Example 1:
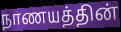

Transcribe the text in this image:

நாணயத்தின்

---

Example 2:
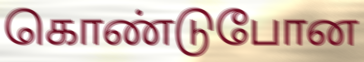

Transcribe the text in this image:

கொண்டுபோன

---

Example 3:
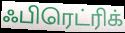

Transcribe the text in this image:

ஃபிரெட்ரிக்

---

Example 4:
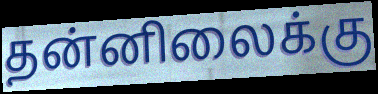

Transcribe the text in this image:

தன்னிலைக்கு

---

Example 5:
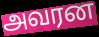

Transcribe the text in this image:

அவரன